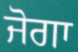
ਜੋਗਾ